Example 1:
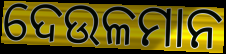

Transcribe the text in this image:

ଦେଉଳମାନ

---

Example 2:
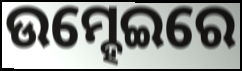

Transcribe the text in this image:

ଉମ୍ହେଇରେ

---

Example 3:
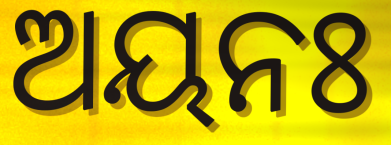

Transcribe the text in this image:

ଅୟନଃ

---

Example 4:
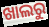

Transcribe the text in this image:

ଖାଲରୁ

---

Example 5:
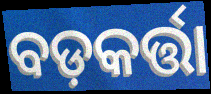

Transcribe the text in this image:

ବଡ଼କର୍ତ୍ତା